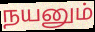
நயனும்